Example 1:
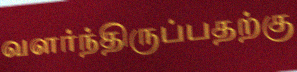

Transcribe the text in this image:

வளர்ந்திருப்பதற்கு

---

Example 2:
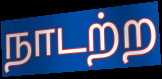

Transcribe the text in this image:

நாடற்ற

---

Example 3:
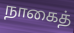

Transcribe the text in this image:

நாகைத்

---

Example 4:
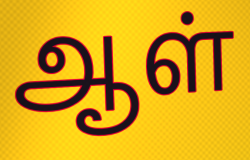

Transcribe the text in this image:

ஆள்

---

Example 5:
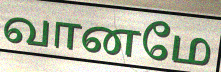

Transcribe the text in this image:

வானமே